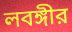
লবঙ্গীর